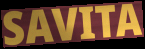
SAVITA